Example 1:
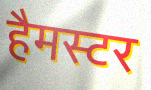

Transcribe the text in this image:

हैमस्टर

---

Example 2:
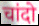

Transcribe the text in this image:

चांदो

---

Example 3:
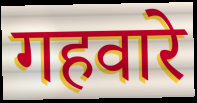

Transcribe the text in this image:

गहवारे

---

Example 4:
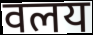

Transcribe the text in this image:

वलय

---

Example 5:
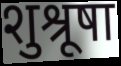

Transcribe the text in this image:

शुश्रूषा